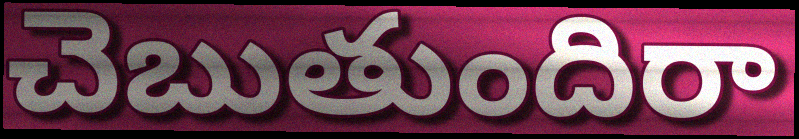
చెబుతుందిరా